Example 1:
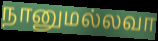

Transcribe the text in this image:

நானுமல்லவா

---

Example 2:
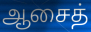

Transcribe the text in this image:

ஆசைத்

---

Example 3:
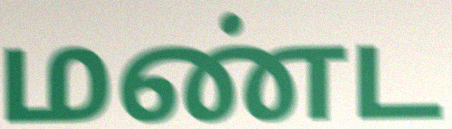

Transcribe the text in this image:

மண்ட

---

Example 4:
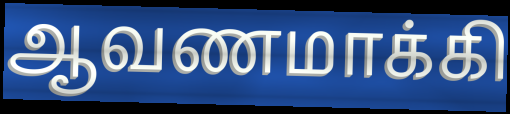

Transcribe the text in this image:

ஆவணமாக்கி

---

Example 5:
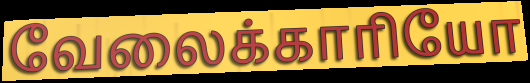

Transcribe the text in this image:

வேலைக்காரியோ